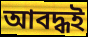
আবদ্ধই